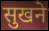
सुखने